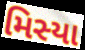
મિસ્યા